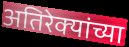
अतिरेक्‍यांच्या